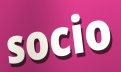
socio